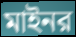
মাইনর